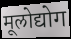
मूलोद्योग